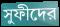
সুফীদের